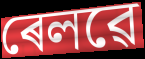
ৰেলৱে